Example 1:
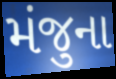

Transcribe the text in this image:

મંજુના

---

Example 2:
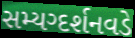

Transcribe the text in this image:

સમ્યગ્દર્શનવડે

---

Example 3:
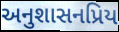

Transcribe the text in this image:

અનુશાસનપ્રિય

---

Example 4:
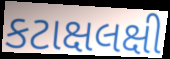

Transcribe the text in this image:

કટાક્ષલક્ષી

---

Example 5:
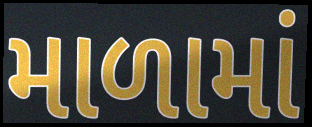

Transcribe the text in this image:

માળામાં